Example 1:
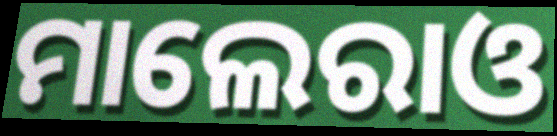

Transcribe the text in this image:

ମାଲେରାଓ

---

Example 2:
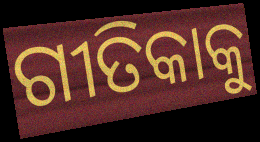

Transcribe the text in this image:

ଗୀତିକାକୁ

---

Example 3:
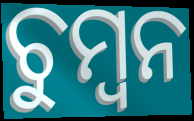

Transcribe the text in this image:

ଚୁମ୍ବନ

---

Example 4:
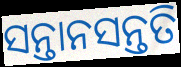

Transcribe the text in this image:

ସନ୍ତାନସନ୍ତତି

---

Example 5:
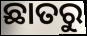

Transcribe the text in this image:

ଛାତରୁ